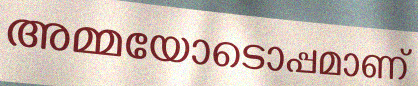
അമ്മയോടൊപ്പമാണ്